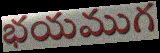
భయముగ